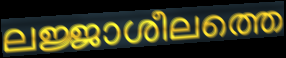
ലജ്ജാശീലത്തെ